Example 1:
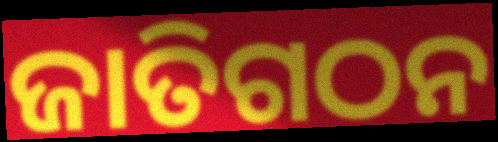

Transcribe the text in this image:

ଜାତିଗଠନ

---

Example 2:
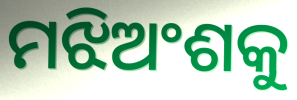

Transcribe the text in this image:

ମଝିଅଂଶକୁ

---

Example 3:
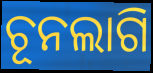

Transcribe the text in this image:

ଚୂନଲାଗି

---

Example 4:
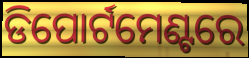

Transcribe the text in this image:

ଡିପୋର୍ଟମେଣ୍ଟରେ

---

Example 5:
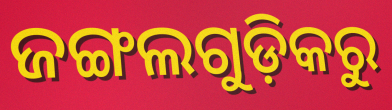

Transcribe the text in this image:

ଜଙ୍ଗଲଗୁଡ଼ିକରୁ